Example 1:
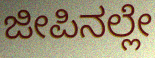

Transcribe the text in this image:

ಜೀಪಿನಲ್ಲೇ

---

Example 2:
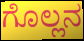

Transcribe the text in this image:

ಗೊಲ್ಲನ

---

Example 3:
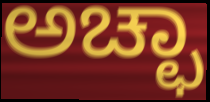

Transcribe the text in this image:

ಅಚ್ಛಾ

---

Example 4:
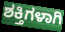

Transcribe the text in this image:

ಶಕ್ತಿಗಳಾಗಿ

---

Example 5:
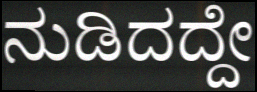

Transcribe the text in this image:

ನುಡಿದದ್ದೇ